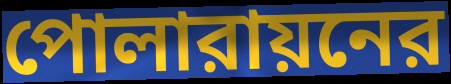
পোলারায়নের